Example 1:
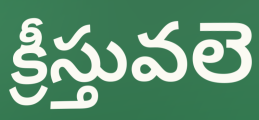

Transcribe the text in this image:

క్రీస్తువలె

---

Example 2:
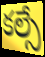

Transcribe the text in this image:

కల్సే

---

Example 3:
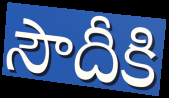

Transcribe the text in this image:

సౌదీకి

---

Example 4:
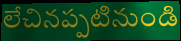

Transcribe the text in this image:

లేచినప్పటినుండి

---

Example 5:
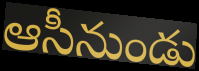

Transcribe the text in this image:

ఆసీనుండు